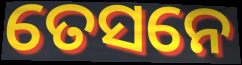
ତେସନେ